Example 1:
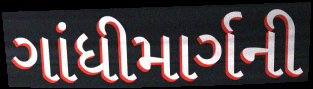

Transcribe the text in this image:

ગાંધીમાર્ગની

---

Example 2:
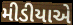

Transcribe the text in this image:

મીડીયાએ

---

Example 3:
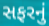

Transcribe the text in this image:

સફરનું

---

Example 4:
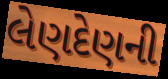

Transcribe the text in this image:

લેણદેણની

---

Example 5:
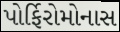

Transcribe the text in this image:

પોર્ફિરોમોનાસ